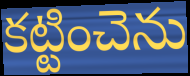
కట్టించెను